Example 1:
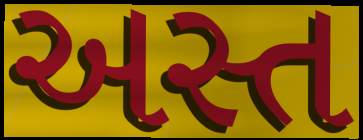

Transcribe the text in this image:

અસ્ત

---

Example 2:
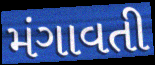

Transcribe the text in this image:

મંગાવતી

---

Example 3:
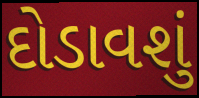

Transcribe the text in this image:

દોડાવશું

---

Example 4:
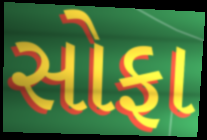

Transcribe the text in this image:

સોફા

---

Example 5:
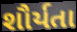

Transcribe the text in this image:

શૌર્યતા